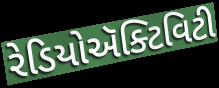
રેડિયોઍક્ટિવિટી